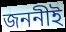
জননীই